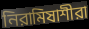
নিরামিষাশীরা